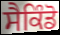
ਸੈਕਿੰਡੋ